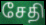
சேதி